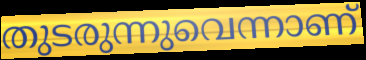
തുടരുന്നുവെന്നാണ്